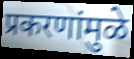
प्रकरणांमुळे